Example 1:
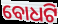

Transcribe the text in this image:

ବୋଧଟି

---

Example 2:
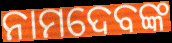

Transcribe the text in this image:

ନାମଦେବଙ୍କ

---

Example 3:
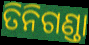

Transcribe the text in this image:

ତିନିଗଣ୍ଡା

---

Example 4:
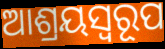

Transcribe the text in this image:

ଆଶ୍ରୟସ୍ୱରୂପ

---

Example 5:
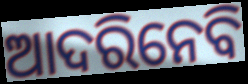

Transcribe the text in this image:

ଆଦରିନେବି